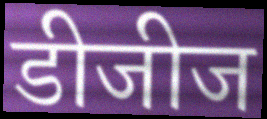
डीजीज